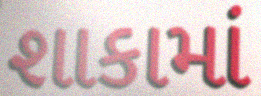
શાકામાં